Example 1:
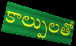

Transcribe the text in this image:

కాల్పులతో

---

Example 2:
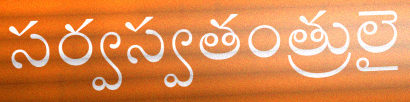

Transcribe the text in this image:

సర్వస్వతంత్రులై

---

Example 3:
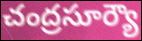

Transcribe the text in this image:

చంద్రసూర్యౌ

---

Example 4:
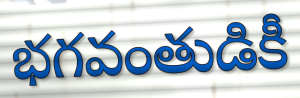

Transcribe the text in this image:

భగవంతుడికీ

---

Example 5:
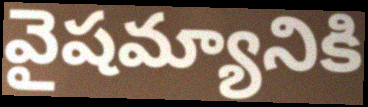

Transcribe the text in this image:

వైషమ్యానికి